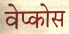
वेप्कोस